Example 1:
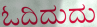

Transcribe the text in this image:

ಓದಿದುದು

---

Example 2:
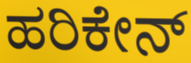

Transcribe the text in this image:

ಹರಿಕೇನ್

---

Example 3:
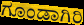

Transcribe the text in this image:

ಗೂಂಡಾಗಿರಿ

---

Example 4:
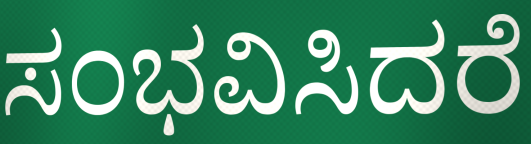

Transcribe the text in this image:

ಸಂಭವಿಸಿದರೆ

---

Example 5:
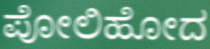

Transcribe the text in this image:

ಪೋಲಿಹೋದ